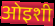
ओइशी